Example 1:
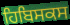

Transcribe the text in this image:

ਹਿਬਿਸਕਸ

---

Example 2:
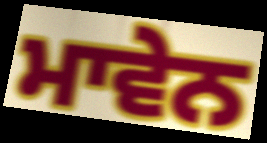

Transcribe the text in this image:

ਮਾਵੇਨ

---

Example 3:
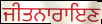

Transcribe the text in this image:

ਜੀਤਨਾਰਾਇਣ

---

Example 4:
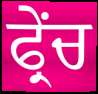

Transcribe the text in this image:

ਫ੍ਰੇੰਚ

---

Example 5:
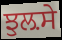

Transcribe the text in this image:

ਝੁਲ਼ਸੇ